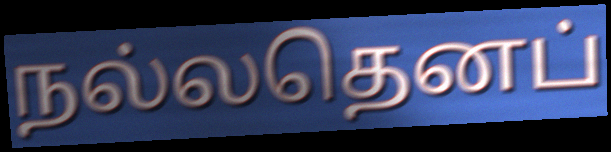
நல்லதெனப்